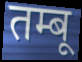
तम्‍बू